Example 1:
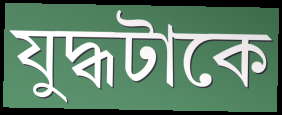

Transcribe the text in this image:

যুদ্ধটাকে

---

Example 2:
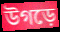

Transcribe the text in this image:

উগড়ে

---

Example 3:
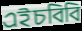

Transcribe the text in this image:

এইচবিবি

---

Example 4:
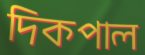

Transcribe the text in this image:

দিকপাল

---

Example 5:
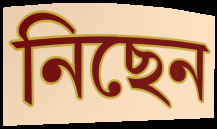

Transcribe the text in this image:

নিছেন